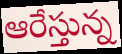
ఆరేస్తున్న